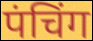
पंचिंग